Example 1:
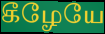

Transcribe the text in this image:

கீழேயே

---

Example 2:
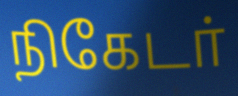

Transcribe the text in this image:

நிகேடர்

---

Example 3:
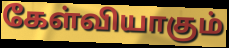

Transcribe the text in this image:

கேள்வியாகும்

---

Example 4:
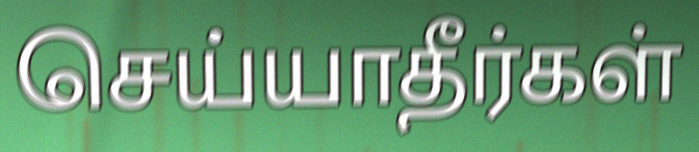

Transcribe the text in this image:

செய்யாதீர்கள்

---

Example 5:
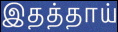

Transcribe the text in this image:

இதத்தாய்